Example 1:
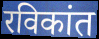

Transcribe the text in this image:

रविकांत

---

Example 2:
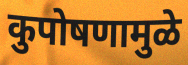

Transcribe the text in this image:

कुपोषणामुळे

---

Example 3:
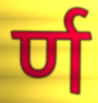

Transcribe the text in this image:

र्ण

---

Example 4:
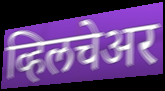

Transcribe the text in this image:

व्हिलचेअर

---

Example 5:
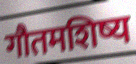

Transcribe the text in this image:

गौतमशिष्य